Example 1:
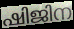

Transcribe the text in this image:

ഷിജിന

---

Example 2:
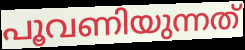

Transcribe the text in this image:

പൂവണിയുന്നത്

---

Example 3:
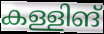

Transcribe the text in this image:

കള്ളിങ്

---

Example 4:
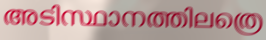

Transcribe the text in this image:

അടിസ്ഥാനത്തിലത്രെ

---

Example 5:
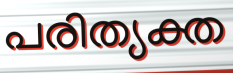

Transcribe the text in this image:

പരിത്യക്ത